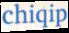
chiqip